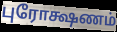
புரோக்ஷணம்